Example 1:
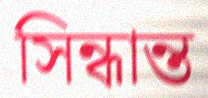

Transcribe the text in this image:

সিন্ধান্ত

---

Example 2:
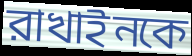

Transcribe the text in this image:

রাখাইনকে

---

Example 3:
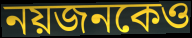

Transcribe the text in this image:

নয়জনকেও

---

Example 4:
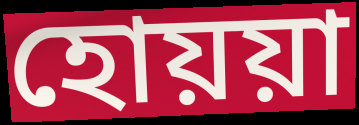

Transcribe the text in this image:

হোয়য়া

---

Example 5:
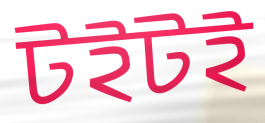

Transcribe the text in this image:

টইটই